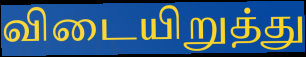
விடையிறுத்து